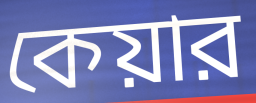
কেয়ার